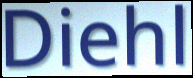
Diehl